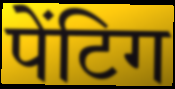
पेंटिग